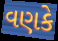
વણકે